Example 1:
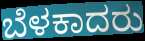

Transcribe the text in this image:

ಬೆಳಕಾದರು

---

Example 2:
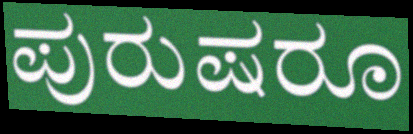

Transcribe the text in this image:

ಪುರುಷರೂ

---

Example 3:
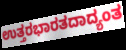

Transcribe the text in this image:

ಉತ್ತರಭಾರತದಾದ್ಯಂತ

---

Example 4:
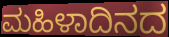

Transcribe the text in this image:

ಮಹಿಳಾದಿನದ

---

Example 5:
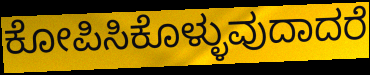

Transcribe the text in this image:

ಕೋಪಿಸಿಕೊಳ್ಳುವುದಾದರೆ